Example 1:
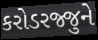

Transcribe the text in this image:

કરોડરજ્જુને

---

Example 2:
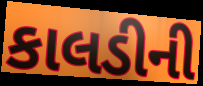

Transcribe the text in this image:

કાલડીની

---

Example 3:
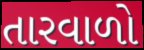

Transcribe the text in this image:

તારવાળો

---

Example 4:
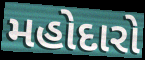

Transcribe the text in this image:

મહોદારો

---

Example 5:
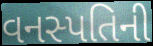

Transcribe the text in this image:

વનસ્પતિની